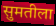
सुमतीला